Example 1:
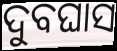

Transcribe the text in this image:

ଦୁବଘାସ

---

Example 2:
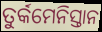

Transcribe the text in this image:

ତୁର୍କମେନିସ୍ତାନ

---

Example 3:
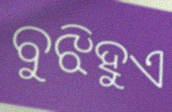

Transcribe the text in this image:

ବୁଝିହୁଏ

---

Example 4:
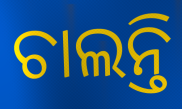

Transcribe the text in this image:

ଚାଲନ୍ତି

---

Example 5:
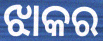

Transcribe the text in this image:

ଝାକର